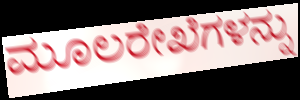
ಮೂಲರೇಖೆಗಳನ್ನು